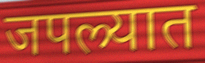
जपल्यात